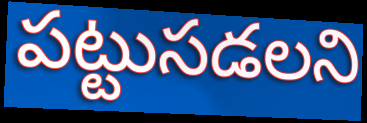
పట్టుసడలని